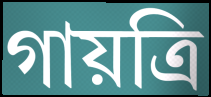
গায়ত্রি